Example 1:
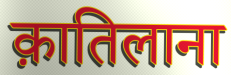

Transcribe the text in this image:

क़ातिलाना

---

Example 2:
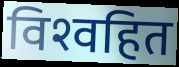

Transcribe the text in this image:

विश्वहित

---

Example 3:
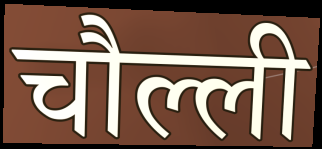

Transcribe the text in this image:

चौल्ली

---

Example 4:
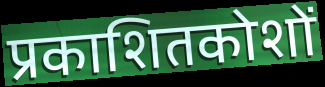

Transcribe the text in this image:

प्रकाशितकोशों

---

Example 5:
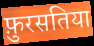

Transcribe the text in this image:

फ़ुरसतिया